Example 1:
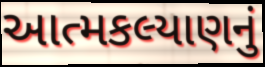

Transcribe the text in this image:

આત્મકલ્યાણનું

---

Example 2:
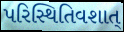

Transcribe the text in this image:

પરિસ્થિતિવશાત્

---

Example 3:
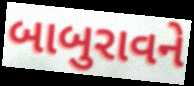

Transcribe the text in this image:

બાબુરાવને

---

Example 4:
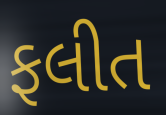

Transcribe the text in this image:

ફલીત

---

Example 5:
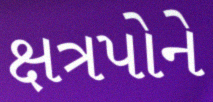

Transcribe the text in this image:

ક્ષત્રપોને